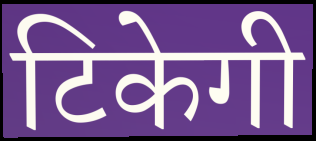
टिकेगी